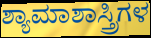
ಶ್ಯಾಮಾಶಾಸ್ತ್ರಿಗಳ